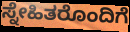
ಸ್ನೇಹಿತರೊಂದಿಗೆ